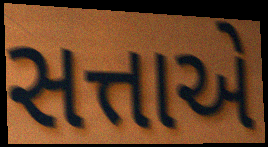
સત્તાએ